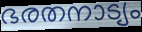
ഭരതനാട്യം